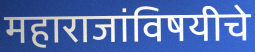
महाराजांविषयीचे